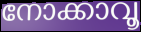
നോക്കാവൂ